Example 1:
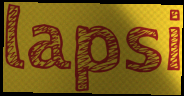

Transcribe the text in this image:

lapsi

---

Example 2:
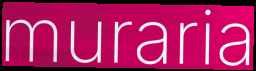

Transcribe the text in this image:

muraria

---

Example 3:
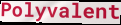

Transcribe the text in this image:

Polyvalent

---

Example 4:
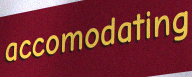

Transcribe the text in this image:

accomodating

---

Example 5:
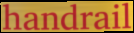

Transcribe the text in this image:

handrail